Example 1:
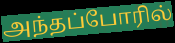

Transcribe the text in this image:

அந்தப்போரில்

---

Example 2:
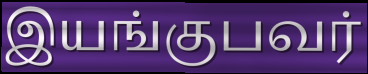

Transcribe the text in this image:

இயங்குபவர்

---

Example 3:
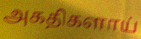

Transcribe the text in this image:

அகதிகளாய்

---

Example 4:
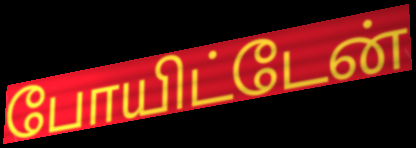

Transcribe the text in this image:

போயிட்டேன்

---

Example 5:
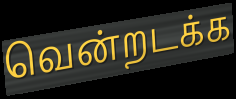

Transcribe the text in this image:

வென்றடக்க